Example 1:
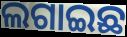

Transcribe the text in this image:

ଲଗାଇଛ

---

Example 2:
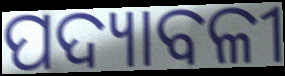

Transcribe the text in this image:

ପଦ୍ୟାବଳୀ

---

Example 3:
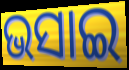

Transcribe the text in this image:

ଭସାଇ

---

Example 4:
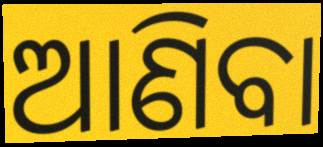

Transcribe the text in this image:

ଆଣିବା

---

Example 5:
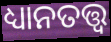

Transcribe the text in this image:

ଧ୍ୟାନତତ୍ତ୍ୱ